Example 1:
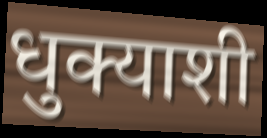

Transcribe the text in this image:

धुक्याशी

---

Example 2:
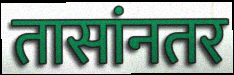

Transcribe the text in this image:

तासांनतर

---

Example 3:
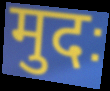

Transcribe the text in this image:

मुदः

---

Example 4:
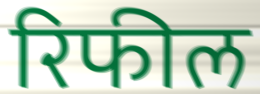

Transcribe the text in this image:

रिफील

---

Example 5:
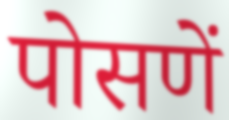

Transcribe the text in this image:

पोसणें